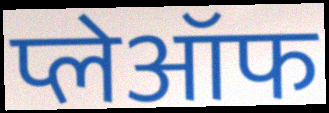
प्‍लेऑफ